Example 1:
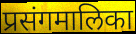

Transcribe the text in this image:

प्रसंगमालिका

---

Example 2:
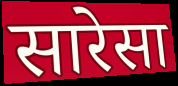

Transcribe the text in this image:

सारेसा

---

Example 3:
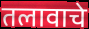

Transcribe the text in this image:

तलावाचे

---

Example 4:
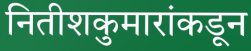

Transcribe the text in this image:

नितीशकुमारांकडून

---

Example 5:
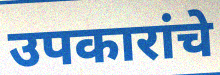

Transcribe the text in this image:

उपकारांचे